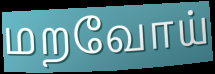
மறவோய்